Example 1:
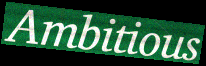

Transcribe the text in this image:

Ambitious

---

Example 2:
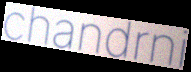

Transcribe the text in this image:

chandrni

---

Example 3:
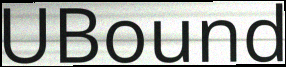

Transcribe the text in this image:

UBound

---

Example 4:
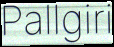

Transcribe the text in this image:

Pallgiri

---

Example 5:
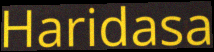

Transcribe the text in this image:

Haridasa